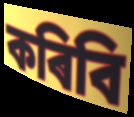
কৰিবি